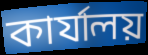
কাৰ্যালয়